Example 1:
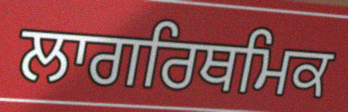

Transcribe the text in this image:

ਲਾਗਰਿਥਮਿਕ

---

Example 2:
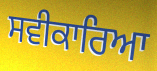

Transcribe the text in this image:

ਸਵੀਕਾਰਿਆ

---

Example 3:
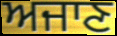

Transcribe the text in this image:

ਅਜਾਣ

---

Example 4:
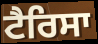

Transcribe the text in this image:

ਟੈਰਿਸਾ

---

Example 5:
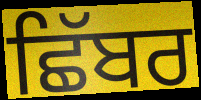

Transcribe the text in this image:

ਛਿੱਬਰ